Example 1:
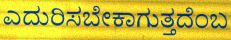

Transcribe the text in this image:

ಎದುರಿಸಬೇಕಾಗುತ್ತದೆಂಬ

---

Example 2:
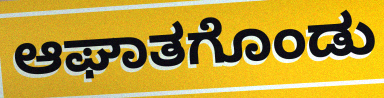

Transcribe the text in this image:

ಆಘಾತಗೊಂಡು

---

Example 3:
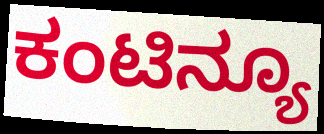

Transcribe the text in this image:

ಕಂಟಿನ್ಯೂ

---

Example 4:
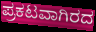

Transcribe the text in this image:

ಪ್ರಕಟವಾಗಿರದ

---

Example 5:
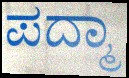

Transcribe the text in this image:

ಪದ್ಮಾ